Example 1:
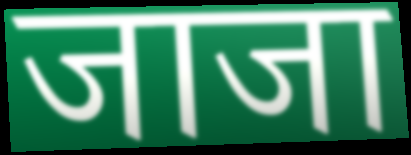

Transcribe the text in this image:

जाजा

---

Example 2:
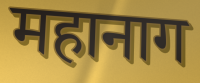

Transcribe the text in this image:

महानाग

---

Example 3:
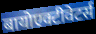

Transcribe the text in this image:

बायोएक्टीवेटर्स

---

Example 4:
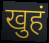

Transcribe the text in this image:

खुहं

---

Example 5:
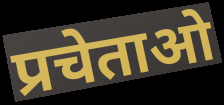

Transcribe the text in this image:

प्रचेताओ